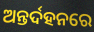
ଅନ୍ତର୍ଦହନରେ